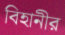
বিহানীর